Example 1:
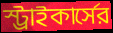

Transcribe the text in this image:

স্ট্রাইকার্সের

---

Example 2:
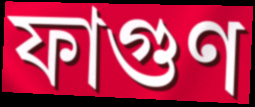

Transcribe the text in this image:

ফাগুণ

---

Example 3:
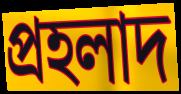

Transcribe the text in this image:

প্রহলাদ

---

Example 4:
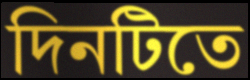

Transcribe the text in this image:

দিনটিতে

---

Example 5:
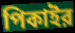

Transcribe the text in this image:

পিকাইর